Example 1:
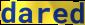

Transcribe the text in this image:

dared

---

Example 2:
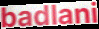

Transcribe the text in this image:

badlani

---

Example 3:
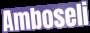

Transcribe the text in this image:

Amboseli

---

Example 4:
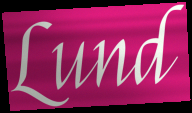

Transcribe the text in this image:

Lund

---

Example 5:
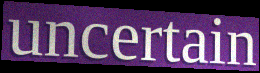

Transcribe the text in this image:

uncertain